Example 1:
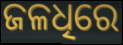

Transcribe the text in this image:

ଜଳଧିରେ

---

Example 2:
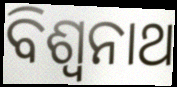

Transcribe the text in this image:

ବିଶ୍ଵନାଥ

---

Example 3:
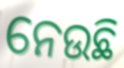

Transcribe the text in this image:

ନେଉଛି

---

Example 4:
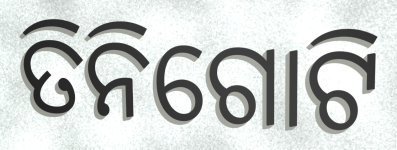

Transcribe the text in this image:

ତିନିଗୋଟି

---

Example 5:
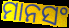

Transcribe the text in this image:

ମାନସଂ